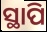
ସ୍ଥାପି